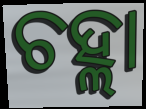
ଚହ୍ଲା